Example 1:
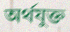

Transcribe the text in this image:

অৰ্থযুক্ত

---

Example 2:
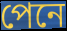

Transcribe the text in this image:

পেনে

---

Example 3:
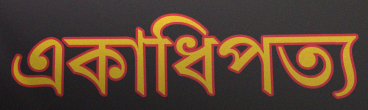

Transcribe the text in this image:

একাধিপত্য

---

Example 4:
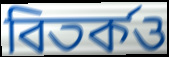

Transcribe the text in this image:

বিতৰ্কও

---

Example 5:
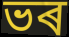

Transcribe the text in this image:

ভৰ